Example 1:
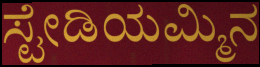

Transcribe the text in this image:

ಸ್ಟೇಡಿಯಮ್ಮಿನ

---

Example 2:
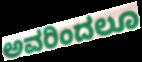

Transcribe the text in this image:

ಅವರಿಂದಲೂ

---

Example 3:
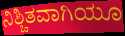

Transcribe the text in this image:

ನಿಶ್ಚಿತವಾಗಿಯೂ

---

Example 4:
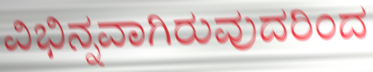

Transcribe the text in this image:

ವಿಭಿನ್ನವಾಗಿರುವುದರಿಂದ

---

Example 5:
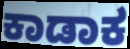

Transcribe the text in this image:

ಕಾಡಾಕ